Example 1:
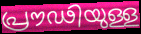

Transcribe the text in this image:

പ്രൗഢിയുള്ള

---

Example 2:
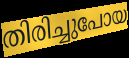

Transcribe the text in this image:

തിരിച്ചുപോയ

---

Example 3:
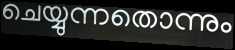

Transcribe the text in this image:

ചെയ്യുന്നതൊന്നും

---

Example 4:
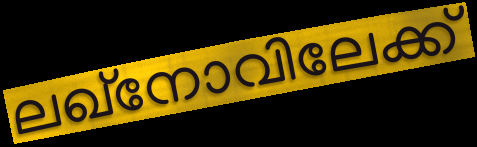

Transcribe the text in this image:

ലഖ്നോവിലേക്ക്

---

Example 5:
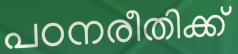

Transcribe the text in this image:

പഠനരീതിക്ക്